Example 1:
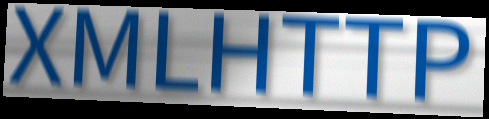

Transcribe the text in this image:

XMLHTTP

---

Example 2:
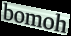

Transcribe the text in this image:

bomoh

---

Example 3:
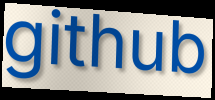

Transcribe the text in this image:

github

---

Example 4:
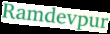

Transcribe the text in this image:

Ramdevpur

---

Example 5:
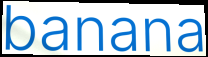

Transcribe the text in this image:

banana